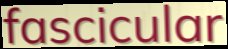
fascicular